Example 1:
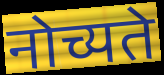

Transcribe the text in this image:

नोच्यते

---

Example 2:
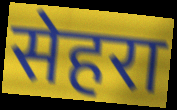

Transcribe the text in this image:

सेहरा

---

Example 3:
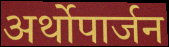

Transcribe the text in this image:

अर्थोपार्जन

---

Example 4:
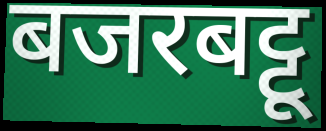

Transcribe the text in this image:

बजरबट्टू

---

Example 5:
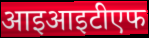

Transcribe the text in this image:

आइआइटीएफ